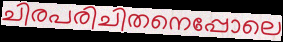
ചിരപരിചിതനെപ്പോലെ